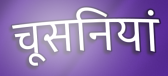
चूसनियां